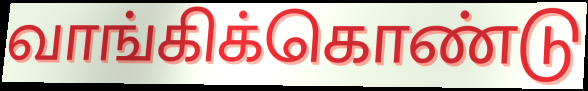
வாங்கிக்கொண்டு